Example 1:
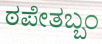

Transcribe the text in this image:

ಠಪೇತಬ್ಬಂ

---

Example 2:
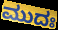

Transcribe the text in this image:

ಮುದಃ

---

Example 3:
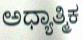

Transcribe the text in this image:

ಅಧ್ಯಾತ್ಮಿಕ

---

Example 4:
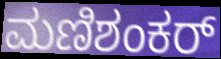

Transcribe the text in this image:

ಮಣಿಶಂಕರ್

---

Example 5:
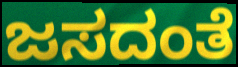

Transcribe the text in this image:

ಜಸದಂತೆ